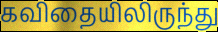
கவிதையிலிருந்து